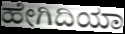
ಹೇಗಿದಿಯಾ